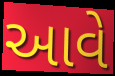
આવે